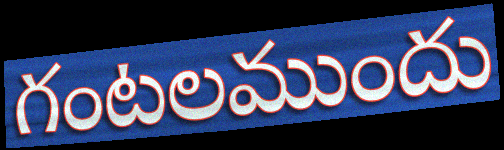
గంటలముందు